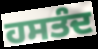
ਹਸਤੰਦ